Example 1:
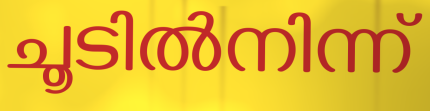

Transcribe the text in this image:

ചൂടിൽനിന്ന്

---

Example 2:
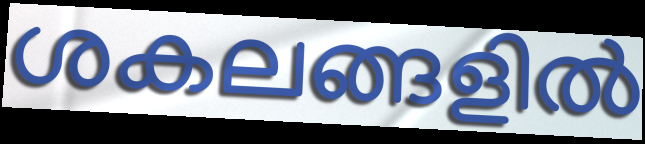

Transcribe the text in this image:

ശകലങ്ങളിൽ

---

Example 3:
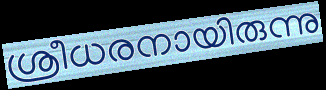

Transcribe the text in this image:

ശ്രീധരനായിരുന്നു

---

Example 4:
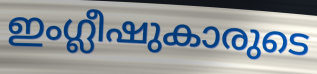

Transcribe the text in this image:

ഇംഗ്ലീഷുകാരുടെ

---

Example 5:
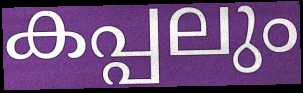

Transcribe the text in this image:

കപ്പലും